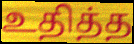
உதித்த